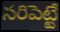
సరిపెట్టే